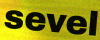
sevel